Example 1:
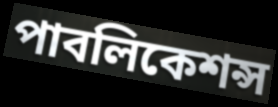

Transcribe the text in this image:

পাবলিকেশন্স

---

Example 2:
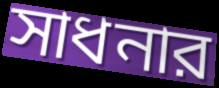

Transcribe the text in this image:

সাধনার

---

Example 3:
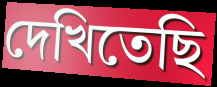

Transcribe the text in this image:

দেখিতেছি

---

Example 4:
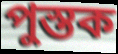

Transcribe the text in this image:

পুস্তক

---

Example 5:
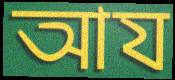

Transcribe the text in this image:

আয